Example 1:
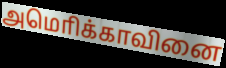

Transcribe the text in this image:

அமெரிக்காவினை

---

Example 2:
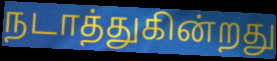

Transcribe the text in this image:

நடாத்துகின்றது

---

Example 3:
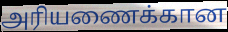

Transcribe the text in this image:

அரியணைக்கான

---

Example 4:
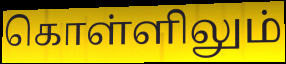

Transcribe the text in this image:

கொள்ளிலும்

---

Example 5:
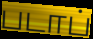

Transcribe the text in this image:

படாப்